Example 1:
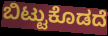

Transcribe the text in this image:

ಬಿಟ್ಟುಕೊಡದೆ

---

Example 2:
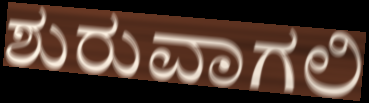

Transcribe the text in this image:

ಶುರುವಾಗಲಿ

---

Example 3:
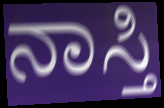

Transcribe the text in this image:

ನಾಸ್ತಿ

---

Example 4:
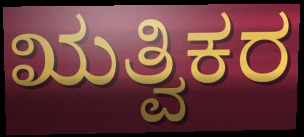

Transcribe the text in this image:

ಋತ್ವಿಕರ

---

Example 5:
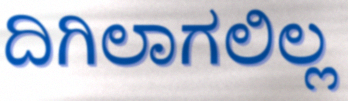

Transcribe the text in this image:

ದಿಗಿಲಾಗಲಿಲ್ಲ